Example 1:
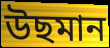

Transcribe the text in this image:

উছমান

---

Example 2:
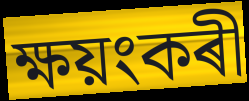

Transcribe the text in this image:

ক্ষয়ংকৰী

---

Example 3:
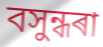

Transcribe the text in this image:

বসুন্ধৰা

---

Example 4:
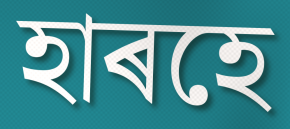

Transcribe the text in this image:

হাৰহে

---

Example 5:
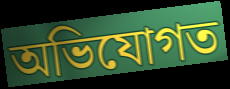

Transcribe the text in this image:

অভিযোগত